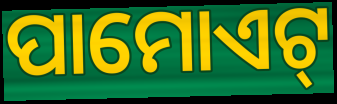
ପାମୋଏଟ୍